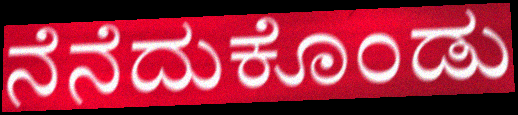
ನೆನೆದುಕೊಂಡು